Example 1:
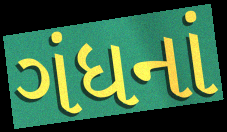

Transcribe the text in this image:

ગંધનાં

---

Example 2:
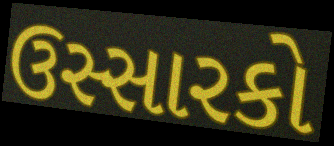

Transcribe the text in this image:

ઉસ્સારકો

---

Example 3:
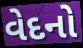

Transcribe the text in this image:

વેદનો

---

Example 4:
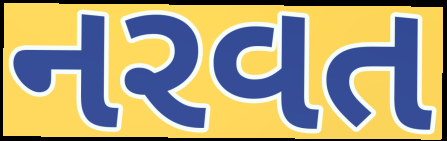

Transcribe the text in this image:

નરવત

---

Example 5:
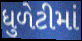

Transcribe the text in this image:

ધુળેટીમાં